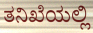
ತನಿಖೆಯಲ್ಲಿ